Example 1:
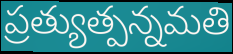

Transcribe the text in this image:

ప్రత్యుత్పన్నమతి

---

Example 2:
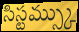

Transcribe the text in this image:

సిస్టమ్స్కు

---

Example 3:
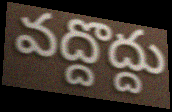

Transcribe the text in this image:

వద్దొద్దు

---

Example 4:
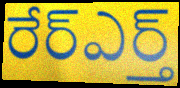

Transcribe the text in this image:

రేర్ఎర్త్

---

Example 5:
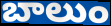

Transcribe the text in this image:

బాలుం